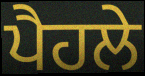
ਪੈਹਲੇ